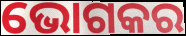
ଭୋଗକର